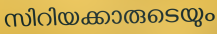
സിറിയക്കാരുടെയും